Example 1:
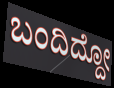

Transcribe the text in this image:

ಬಂದಿದ್ದೋ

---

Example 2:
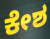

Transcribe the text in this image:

ಕೇಶ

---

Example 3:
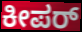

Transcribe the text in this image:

ಕೀಪರ್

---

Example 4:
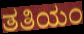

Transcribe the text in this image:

ತತಿಯಂ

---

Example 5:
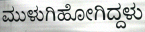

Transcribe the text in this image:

ಮುಳುಗಿಹೋಗಿದ್ದಳು